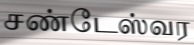
சண்டேஸ்வர